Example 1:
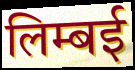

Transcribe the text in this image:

लिम्बई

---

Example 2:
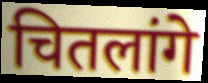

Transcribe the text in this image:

चितलांगे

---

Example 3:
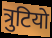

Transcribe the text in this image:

त्रुटियो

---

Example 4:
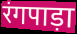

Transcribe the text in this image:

रंगपाड़ा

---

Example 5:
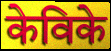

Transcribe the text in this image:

केविके